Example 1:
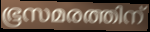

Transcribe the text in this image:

ഭൂസമരത്തിന്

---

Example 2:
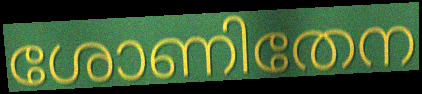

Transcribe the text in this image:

ശോണിതേന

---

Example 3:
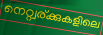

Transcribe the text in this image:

നെറ്റ്വര്ക്കുകളിലെ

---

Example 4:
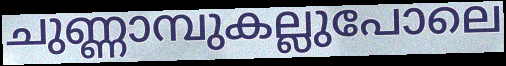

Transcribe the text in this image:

ചുണ്ണാമ്പുകല്ലുപോലെ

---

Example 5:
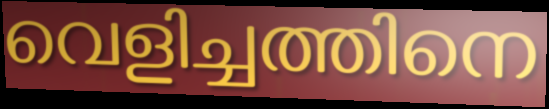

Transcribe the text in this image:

വെളിച്ചത്തിനെ